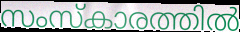
സംസ്കാരത്തിൽ